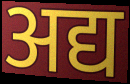
अद्य